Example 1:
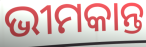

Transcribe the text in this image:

ଭୀମକାନ୍ତ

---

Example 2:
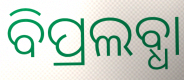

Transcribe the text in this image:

ବିପ୍ରଲବ୍ଧା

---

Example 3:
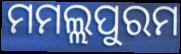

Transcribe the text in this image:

ମମଲ୍ଲପୁରମ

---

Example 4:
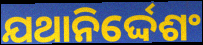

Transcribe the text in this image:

ଯଥାନିର୍ଦ୍ଦେଶଂ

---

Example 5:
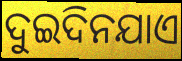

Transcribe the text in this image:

ଦୁଇଦିନଯାଏ